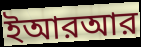
ইআরআর